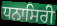
ਧਨਾਸਿਰੀ